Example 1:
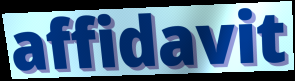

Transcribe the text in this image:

affidavit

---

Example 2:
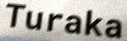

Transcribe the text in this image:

Turaka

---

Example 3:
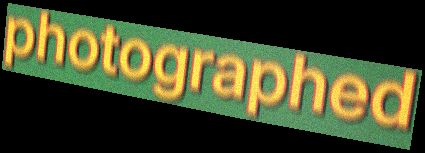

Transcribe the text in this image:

photographed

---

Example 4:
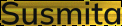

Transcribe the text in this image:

Susmita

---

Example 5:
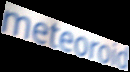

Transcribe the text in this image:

meteoroid